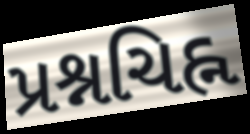
પ્રશ્નચિહ્ન